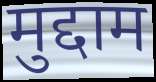
मुद्दाम